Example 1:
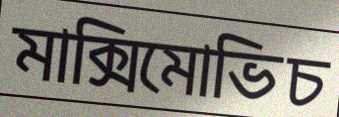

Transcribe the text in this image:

মাক্সিমোভিচ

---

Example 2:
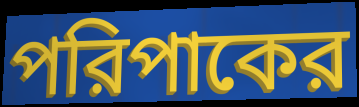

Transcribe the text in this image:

পরিপাকের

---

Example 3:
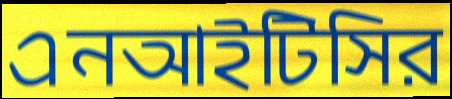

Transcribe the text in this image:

এনআইটিসির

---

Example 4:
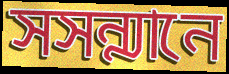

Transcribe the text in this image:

সসন্মানে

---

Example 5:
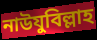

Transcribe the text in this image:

নাউযুবিল্লাহ